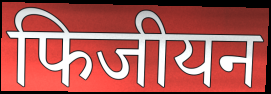
फिजीयन